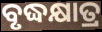
ବୃଦ୍ଧକ୍ଷାତ୍ର